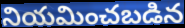
నియమించబడిన